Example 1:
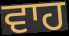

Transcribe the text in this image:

ਵਾਹ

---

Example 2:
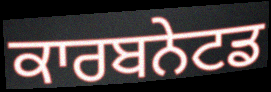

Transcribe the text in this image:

ਕਾਰਬਨੇਟਡ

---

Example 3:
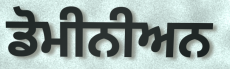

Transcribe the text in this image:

ਡੋਮੀਨੀਅਨ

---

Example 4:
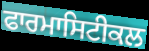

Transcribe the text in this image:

ਫਾਰਮਾਸਿਟੀਕਲ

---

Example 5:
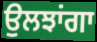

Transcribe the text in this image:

ਉਲਝਾਂਗਾ